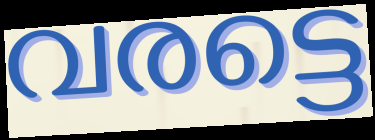
വരട്ടെ